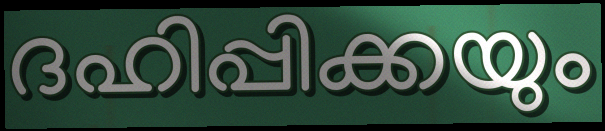
ദഹിപ്പിക്കയും